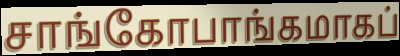
சாங்கோபாங்கமாகப்